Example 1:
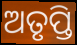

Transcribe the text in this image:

ଅତୃପ୍ତି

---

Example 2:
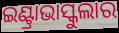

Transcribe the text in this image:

ଇଣ୍ଟ୍ରାଭାସ୍କୁଲାର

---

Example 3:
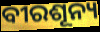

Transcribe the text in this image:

ବୀରଶୂନ୍ୟ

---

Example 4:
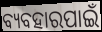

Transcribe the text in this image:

ବ୍ୟବହାରପାଇଁ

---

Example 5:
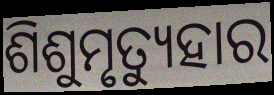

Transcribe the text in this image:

ଶିଶୁମୃତ୍ୟୁହାର